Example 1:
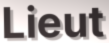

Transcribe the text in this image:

Lieut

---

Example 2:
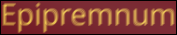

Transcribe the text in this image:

Epipremnum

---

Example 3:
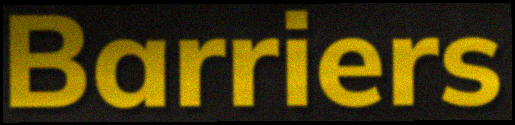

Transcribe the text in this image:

Barriers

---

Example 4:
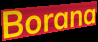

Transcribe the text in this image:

Borana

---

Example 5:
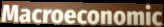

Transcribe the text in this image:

Macroeconomic